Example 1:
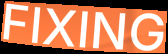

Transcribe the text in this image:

FIXING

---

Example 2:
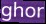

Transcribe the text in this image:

ghor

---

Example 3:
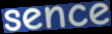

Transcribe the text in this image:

sence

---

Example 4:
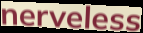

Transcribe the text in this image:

nerveless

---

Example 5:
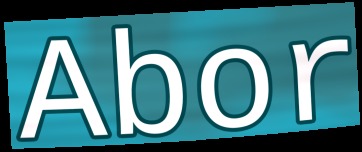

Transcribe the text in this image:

Abor